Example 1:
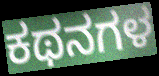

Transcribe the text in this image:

ಕಥನಗಳ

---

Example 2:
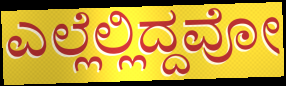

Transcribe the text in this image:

ಎಲ್ಲೆಲ್ಲಿದ್ದವೋ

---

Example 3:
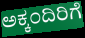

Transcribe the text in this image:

ಅಕ್ಕಂದಿರಿಗೆ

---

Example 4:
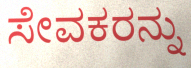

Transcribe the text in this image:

ಸೇವಕರನ್ನು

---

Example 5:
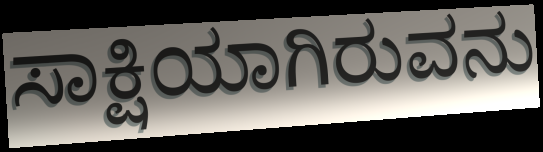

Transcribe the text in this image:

ಸಾಕ್ಷಿಯಾಗಿರುವನು